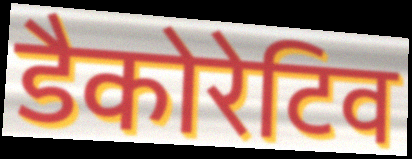
डैकोरेटिव